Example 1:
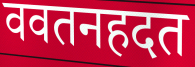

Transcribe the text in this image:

ववतनहदत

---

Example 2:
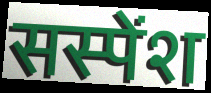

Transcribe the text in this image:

सस्पेंश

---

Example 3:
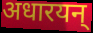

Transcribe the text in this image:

अधारयन्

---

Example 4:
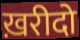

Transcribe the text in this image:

ख़रीदो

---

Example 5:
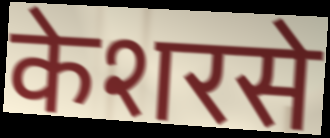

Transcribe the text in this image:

केशरसे